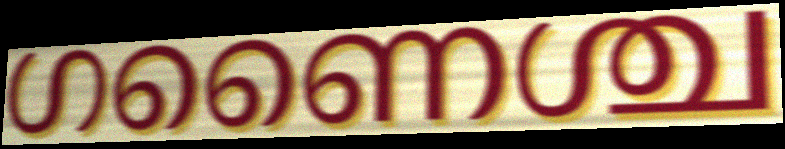
ഗണൈശ്ച